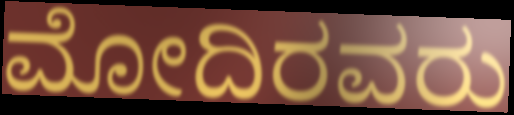
ಮೋದಿರವರು